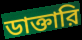
ডাক্তারি